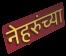
नेहरुंच्या